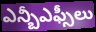
ఎన్బీఎఫ్సీలు